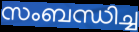
സംബന്ധിച്ച